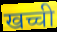
खच्ची